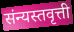
संन्यस्तवृत्ती